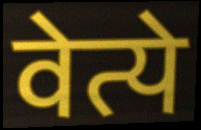
वेत्ये